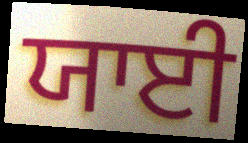
ਯਾਈ